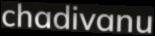
chadivanu